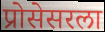
प्रोसेसरला